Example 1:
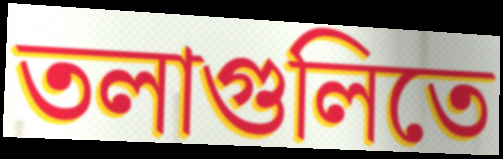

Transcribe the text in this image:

তলাগুলিতে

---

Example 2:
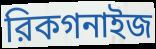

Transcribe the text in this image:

রিকগনাইজ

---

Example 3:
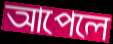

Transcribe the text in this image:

আপেলে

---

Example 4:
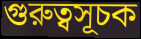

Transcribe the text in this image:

গুরুত্বসূচক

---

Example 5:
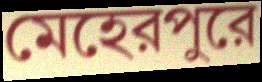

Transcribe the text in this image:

মেহেরপুরে